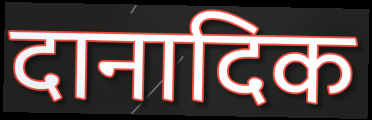
दानादिक